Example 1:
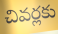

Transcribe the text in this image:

చివర్లకు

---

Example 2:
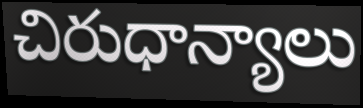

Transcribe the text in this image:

చిరుధాన్యాలు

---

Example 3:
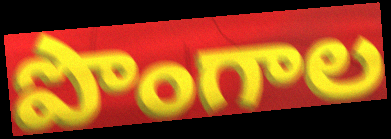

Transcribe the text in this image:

పొంగాల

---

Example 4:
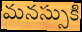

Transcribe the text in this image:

మనస్సుకి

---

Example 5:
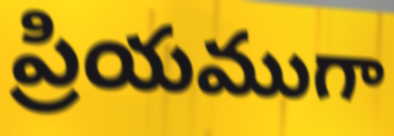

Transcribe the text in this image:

ప్రియముగా